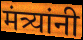
मंत्र्यांनी